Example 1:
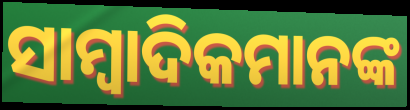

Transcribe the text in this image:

ସାମ୍ବାଦିକମାନଙ୍କ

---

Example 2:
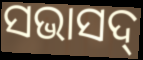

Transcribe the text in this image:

ସଭାସଦ୍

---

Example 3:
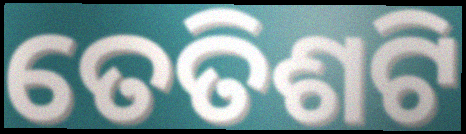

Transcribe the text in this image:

ତେତିଶଟି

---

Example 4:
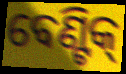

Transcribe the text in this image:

ବେଣ୍ଟିକ୍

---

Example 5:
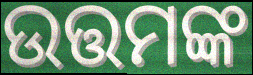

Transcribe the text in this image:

ଉତ୍ତମଙ୍କ